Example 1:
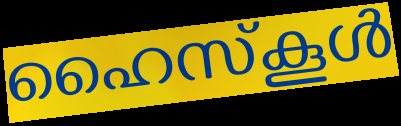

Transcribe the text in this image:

ഹൈസ്‌കൂൾ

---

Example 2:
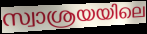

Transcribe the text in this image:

സ്വാശ്രയയിലെ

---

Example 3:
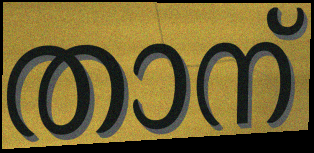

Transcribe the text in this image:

താന്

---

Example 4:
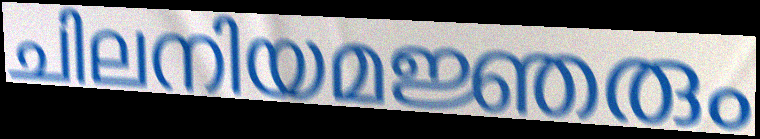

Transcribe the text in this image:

ചിലനിയമജ്ഞരും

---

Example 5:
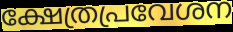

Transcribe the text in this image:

ക്ഷേത്രപ്രവേശന